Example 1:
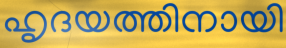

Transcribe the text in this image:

ഹൃദയത്തിനായി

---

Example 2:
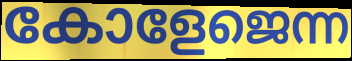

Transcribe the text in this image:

കോളേജെന്ന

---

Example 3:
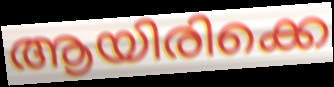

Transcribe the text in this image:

ആയിരിക്കെ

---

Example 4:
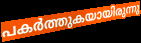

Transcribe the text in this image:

പകർത്തുകയായിരുന്നു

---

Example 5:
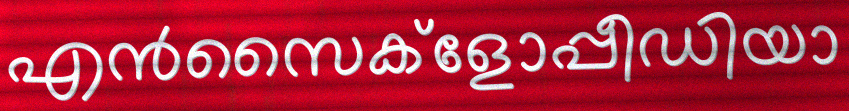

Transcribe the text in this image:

എൻസൈക്ളോപ്പീഡിയാ